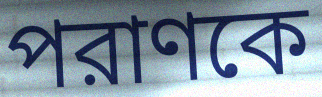
পরাণকে